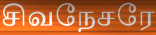
சிவநேசரே